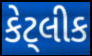
કેટ્લીક